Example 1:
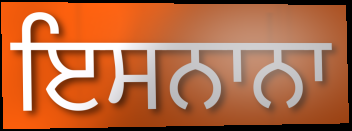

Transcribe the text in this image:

ਇਸਨਾਨਾ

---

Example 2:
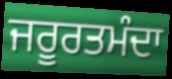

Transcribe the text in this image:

ਜਰੂਰਤਮੰਦਾ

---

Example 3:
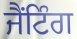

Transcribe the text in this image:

ਜੈਂਟਿੰਗ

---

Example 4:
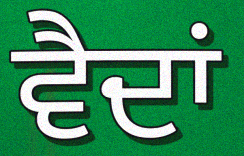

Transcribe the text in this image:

ਵੈਦਾਂ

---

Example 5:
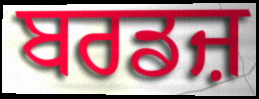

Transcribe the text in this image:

ਬਰਡਜ਼